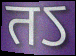
तऽ